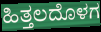
ಹಿತ್ತಲದೊಳಗ